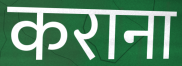
कराना